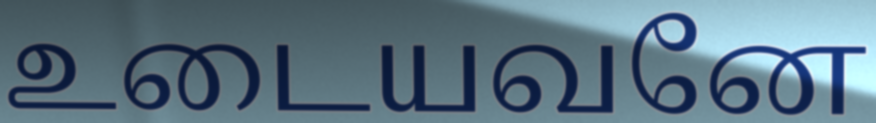
உடையவனே